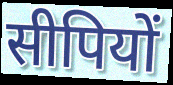
सीपियों